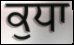
ਕੁਧਾ